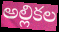
అల్లికల